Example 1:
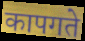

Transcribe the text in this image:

कापगते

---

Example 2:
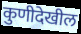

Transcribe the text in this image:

कुणीदेखील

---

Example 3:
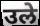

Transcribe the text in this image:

उले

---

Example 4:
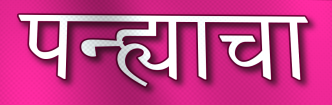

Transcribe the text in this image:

पन्ह्याचा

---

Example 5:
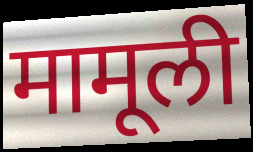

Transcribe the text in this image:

मामूली